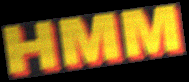
HMM